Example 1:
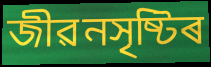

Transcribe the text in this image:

জীৱনসৃষ্টিৰ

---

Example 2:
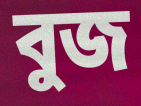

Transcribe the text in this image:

বুজ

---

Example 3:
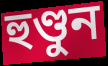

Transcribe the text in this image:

হুণ্ডুন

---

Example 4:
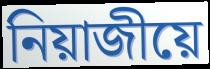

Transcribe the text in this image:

নিয়াজীয়ে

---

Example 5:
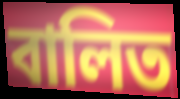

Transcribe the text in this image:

বালিত